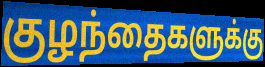
குழந்தைகளுக்கு